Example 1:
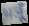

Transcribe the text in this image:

भजूँ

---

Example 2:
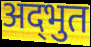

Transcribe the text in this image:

अद्‌भुत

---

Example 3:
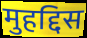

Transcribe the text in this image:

मुहद्दिस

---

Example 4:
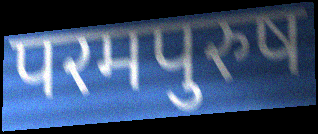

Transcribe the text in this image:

परमपुरुष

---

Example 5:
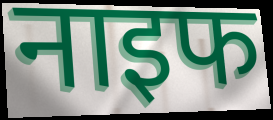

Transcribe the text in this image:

नाइफ